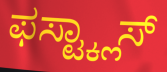
ಫಸ್ಟ್ಕ್ಲಾಸ್